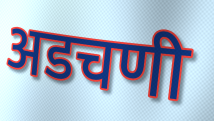
अडचणी